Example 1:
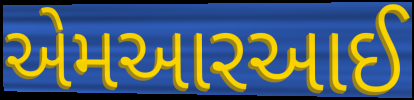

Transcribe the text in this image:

એમઆરઆઈ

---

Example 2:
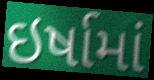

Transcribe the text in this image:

ઇર્ષામાં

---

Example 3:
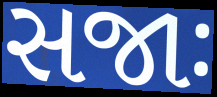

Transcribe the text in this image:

સજાઃ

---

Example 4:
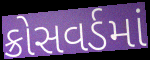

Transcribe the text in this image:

ક્રોસવર્ડમાં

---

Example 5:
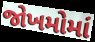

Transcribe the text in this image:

જોખમોમાં